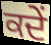
ਕਦੇਂ